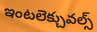
ఇంటలెక్చువల్స్